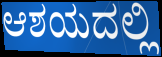
ಆಶಯದಲ್ಲಿ